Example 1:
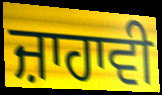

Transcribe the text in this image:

ਜ਼ਾਹਾਵੀ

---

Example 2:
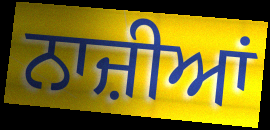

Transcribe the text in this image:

ਨਾਜ਼ੀਆਂ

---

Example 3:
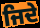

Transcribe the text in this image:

ਜਿਦੇ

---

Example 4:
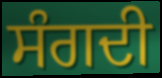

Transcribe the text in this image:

ਸੰਗਦੀ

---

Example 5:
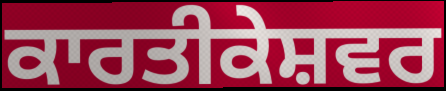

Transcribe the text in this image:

ਕਾਰਤੀਕੇਸ਼ਵਰ